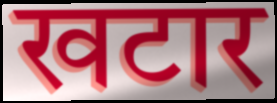
खटार